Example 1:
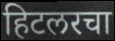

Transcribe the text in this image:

हिटलरचा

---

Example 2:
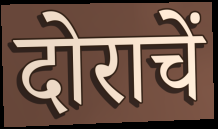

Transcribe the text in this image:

दोराचें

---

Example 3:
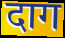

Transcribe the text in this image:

दाग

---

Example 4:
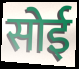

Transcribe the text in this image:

सोई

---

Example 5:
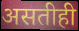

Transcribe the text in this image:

असतीही